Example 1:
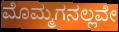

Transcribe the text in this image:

ಮೊಮ್ಮಗನಲ್ಲವೇ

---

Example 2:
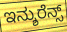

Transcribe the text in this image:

ಇನ್ಶುರೆನ್ಸ್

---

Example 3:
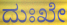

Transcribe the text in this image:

ದುಃಖೇ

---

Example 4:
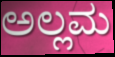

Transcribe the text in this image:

ಅಲ್ಲಮ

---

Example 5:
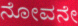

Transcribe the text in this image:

ನೋವನೇ